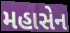
મહાસેન